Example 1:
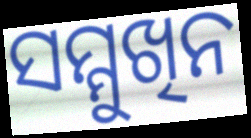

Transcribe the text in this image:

ସମ୍ମୁଖିନ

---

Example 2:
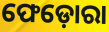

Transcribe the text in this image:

ଫେଡ଼ୋରା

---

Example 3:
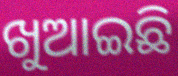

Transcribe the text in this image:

ଖୁଆଇଛି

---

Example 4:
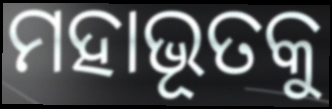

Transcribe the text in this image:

ମହାଭୂତକୁ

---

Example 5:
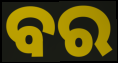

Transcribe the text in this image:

ବର